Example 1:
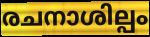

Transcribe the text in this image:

രചനാശില്പം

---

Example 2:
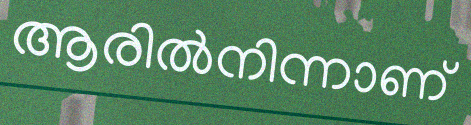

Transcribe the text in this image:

ആരിൽനിന്നാണ്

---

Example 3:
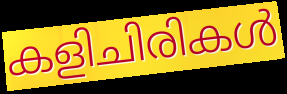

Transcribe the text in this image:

കളിചിരികൾ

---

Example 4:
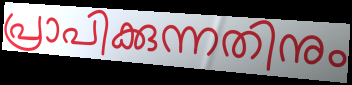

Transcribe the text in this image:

പ്രാപിക്കുന്നതിനും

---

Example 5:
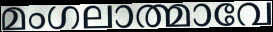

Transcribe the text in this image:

മംഗലാത്മാവേ